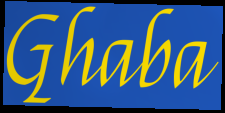
Ghaba